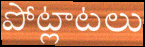
పోట్లాటలు